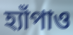
হ্যাঁপাও